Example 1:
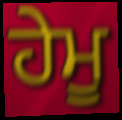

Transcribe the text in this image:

ਹੇਮੂ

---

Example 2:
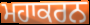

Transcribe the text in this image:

ਮਹਾਕਰਨ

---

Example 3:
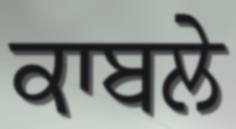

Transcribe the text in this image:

ਕਾਬਲੇ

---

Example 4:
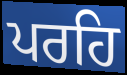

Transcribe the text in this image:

ਪਰਹਿ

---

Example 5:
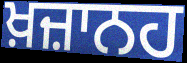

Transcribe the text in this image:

ਖ਼ਜ਼ਾਨਹ